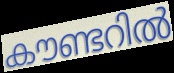
കൗണ്ടറിൽ